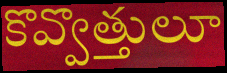
కొవ్వొత్తులూ